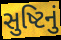
સુષ્ટિનું